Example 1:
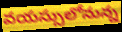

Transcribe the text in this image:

వయస్సులోనున్న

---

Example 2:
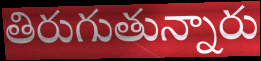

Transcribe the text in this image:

తిరుగుతున్నారు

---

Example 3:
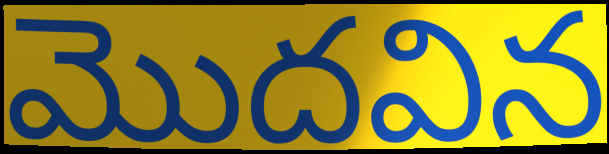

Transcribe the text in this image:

మొదవిన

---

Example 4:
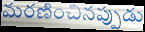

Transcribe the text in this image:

మరణించినప్పుడు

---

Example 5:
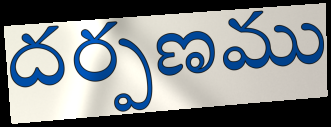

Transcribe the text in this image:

దర్పణము